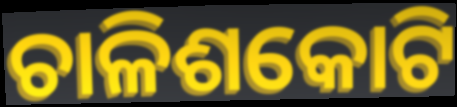
ଚାଳିଶକୋଟି